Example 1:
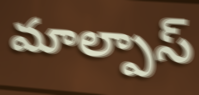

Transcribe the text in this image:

మాల్పాస్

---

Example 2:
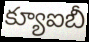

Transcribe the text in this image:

క్యూఐబీ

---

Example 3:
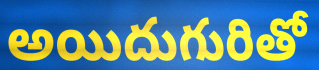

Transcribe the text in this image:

అయిదుగురితో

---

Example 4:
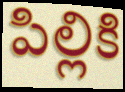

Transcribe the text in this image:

పిల్లికి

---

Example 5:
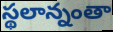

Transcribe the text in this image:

స్థలాన్నంతా